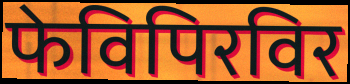
फेविपिरविर